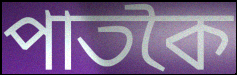
পাতকৈ